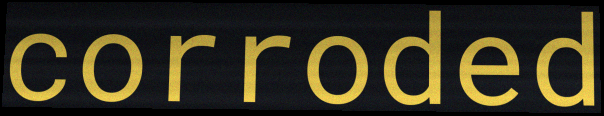
corroded